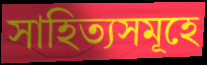
সাহিত্যসমূহে